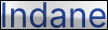
Indane